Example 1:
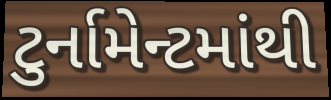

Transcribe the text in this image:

ટુર્નામેન્ટમાંથી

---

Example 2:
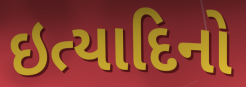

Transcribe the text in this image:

ઇત્યાદિનો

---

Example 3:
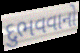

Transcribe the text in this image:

દુભવવાનો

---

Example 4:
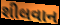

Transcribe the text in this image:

શીલવાન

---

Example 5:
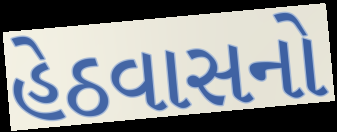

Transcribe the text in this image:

હેઠવાસનો